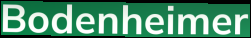
Bodenheimer